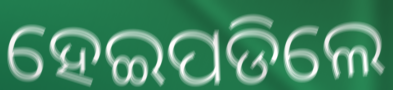
ହେଇପଡିଲେ